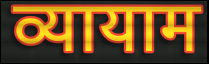
व्यायाम